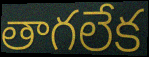
తాగలేక